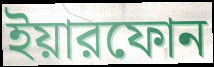
ইয়ারফোন